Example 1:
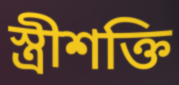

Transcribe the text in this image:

স্ত্রীশক্তি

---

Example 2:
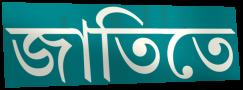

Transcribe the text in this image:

জাতিতে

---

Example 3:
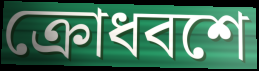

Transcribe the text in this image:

ক্রোধবশে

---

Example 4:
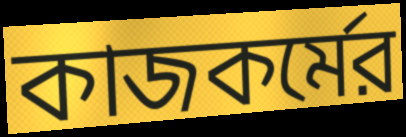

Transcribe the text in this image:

কাজকর্মের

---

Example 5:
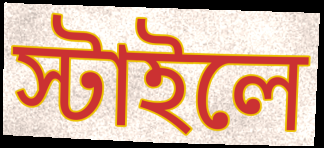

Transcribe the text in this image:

স্টাইলে